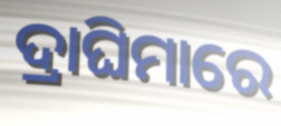
ଦ୍ରାଘିମାରେ